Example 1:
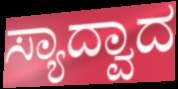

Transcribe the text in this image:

ಸ್ಯಾದ್ವಾದ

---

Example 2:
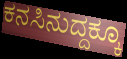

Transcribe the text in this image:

ಕನಸಿನುದ್ದಕ್ಕೂ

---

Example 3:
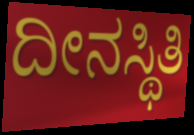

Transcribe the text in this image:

ದೀನಸ್ಥಿತಿ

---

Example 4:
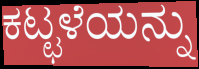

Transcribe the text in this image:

ಕಟ್ಟಳೆಯನ್ನು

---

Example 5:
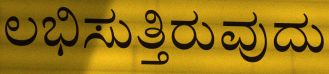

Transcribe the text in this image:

ಲಭಿಸುತ್ತಿರುವುದು